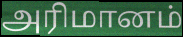
அரிமானம்